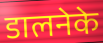
डालनेके